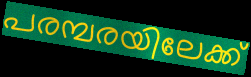
പരമ്പരയിലേക്ക്